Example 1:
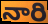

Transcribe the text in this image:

నారి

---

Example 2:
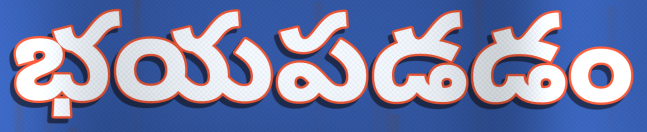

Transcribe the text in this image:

భయపడడం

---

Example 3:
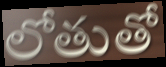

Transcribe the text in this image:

లోతుతో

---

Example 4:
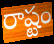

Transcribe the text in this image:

రాష్టం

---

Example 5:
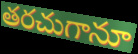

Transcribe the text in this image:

తరచుగానూ